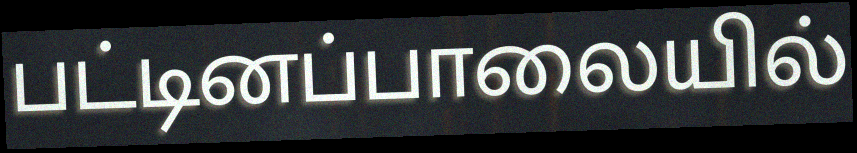
பட்டினப்பாலையில்